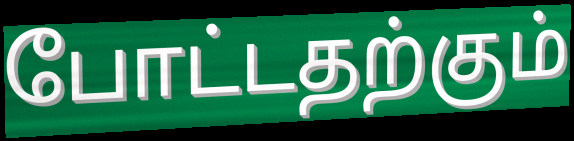
போட்டதற்கும்